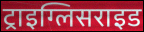
ट्राइग्लिसराइड